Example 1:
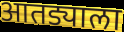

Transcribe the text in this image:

आतड्याला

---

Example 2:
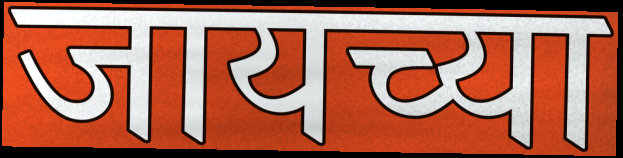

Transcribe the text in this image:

जायच्या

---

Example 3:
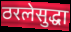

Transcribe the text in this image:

ठरलेसुद्धा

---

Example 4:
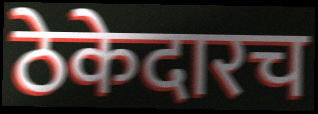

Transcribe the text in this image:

ठेकेदारच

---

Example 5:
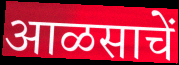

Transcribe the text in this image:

आळसाचें